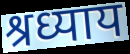
श्रध्याय